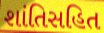
શાંતિસહિત